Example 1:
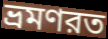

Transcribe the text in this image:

ভ্রমণরত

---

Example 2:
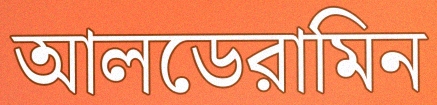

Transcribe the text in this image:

আলডেরামিন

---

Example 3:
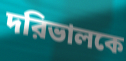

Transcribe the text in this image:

দরিভালকে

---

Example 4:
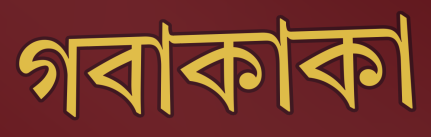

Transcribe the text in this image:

গবাকাকা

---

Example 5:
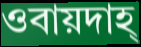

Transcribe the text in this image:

ওবায়দাহ্